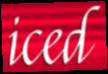
iced